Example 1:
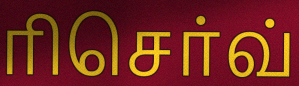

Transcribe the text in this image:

ரிசெர்வ்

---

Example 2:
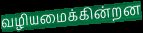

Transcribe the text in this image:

வழியமைக்கின்றன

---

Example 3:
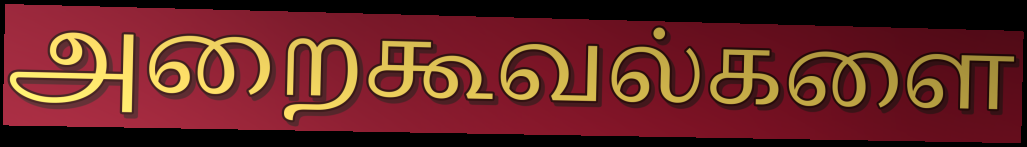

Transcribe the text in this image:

அறைகூவல்களை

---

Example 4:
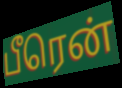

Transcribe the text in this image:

பீரென்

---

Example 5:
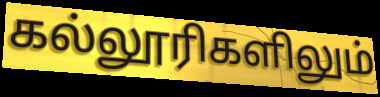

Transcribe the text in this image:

கல்லூரிகளிலும்